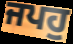
ਜਪਹੁ